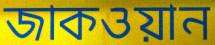
জাকওয়ান